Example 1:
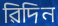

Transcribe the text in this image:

ৱিদিন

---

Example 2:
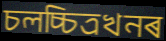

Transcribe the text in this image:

চলচ্চিত্ৰখনৰ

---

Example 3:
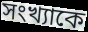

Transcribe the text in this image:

সংখ্যাকে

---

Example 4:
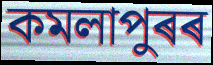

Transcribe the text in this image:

কমলাপুৰৰ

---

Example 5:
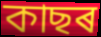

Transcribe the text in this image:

কাছৰ